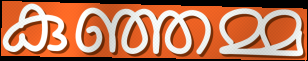
കുഞ്ഞമ്മ